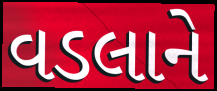
વડલાને